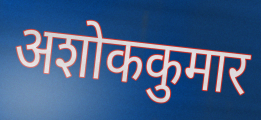
अशोककुमार